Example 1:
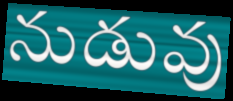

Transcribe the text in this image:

నుడువు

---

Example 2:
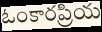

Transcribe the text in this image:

ఓంకారప్రియ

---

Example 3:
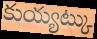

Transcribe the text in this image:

కుయ్యట్కు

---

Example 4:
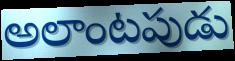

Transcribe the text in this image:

అలాంటపుడు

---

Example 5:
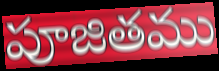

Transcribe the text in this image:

పూజితము